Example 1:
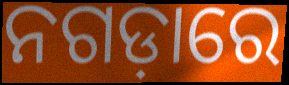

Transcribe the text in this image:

ନଗଡ଼ାରେ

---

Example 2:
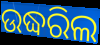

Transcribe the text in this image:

ଉଦ୍ଧରିଲ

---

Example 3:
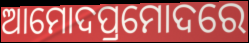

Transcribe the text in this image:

ଆମୋଦପ୍ରମୋଦରେ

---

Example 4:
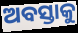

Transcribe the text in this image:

ଅବସ୍ତାକୁ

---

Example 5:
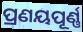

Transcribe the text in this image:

ପ୍ରଣୟପୂର୍ଣ୍ଣ